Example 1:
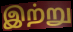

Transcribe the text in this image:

இற்று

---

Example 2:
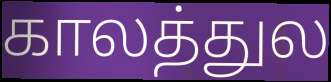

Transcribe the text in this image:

காலத்துல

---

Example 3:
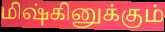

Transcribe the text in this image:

மிஷ்கினுக்கும்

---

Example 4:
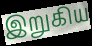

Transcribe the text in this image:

இறுகிய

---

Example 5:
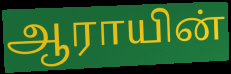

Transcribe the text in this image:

ஆராயின்